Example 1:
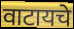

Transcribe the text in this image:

वाटायचे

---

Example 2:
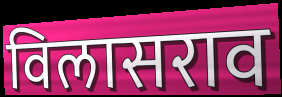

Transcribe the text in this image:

विलासराव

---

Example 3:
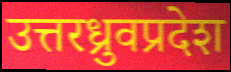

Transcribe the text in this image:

उत्तरध्रुवप्रदेश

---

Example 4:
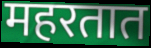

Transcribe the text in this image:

महरतात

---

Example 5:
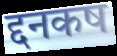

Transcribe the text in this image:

द्दनकष